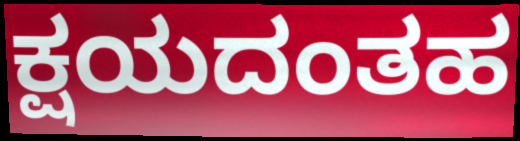
ಕ್ಷಯದಂತಹ